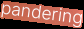
pandering